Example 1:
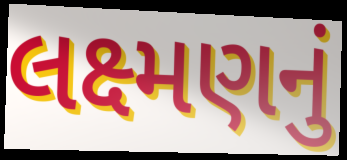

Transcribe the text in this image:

લક્ષ્મણનું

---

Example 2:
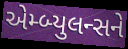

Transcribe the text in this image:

એમ્બ્યુલન્સને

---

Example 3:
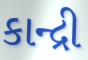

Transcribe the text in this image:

કાન્દ્રી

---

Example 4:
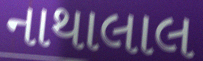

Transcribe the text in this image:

નાથાલાલ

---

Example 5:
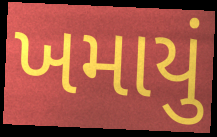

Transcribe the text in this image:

ખમાયું